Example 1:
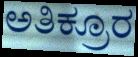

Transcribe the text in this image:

ಅತಿಕ್ರೂರ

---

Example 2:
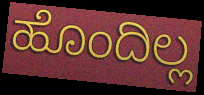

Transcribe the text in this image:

ಹೊಂದಿಲ್ಲ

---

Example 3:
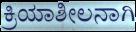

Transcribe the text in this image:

ಕ್ರಿಯಾಶೀಲನಾಗಿ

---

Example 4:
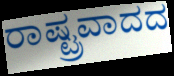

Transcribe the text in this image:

ರಾಷ್ಟ್ರವಾದದ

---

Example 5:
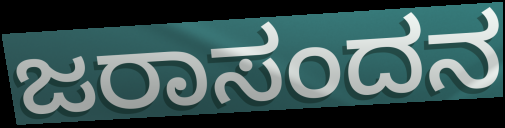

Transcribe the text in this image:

ಜರಾಸಂದನ